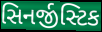
સિનર્જીસ્ટિક